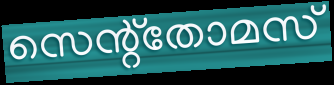
സെന്റ്തോമസ്